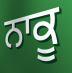
ਨਾਕੂ